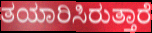
ತಯಾರಿಸಿರುತ್ತಾರೆ